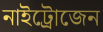
নাইট্রোজেন